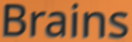
Brains